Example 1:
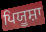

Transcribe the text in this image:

ਪਿਯੂਸ਼ਾ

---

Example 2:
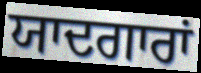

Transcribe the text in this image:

ਯਾਦਗਾਰਾਂ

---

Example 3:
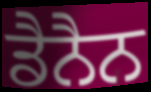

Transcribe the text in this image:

ਡੈਨੈਨ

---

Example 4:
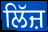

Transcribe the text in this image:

ਲਿੱਜ਼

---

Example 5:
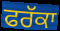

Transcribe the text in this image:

ਫਰੱਕਾ